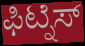
ಫಿಟ್ನೆಸ್